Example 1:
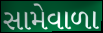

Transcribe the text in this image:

સામેવાળા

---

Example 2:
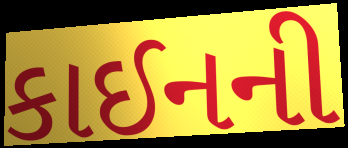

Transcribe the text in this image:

કાઈનની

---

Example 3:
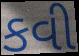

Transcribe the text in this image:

કવી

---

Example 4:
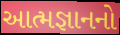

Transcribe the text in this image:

આત્મજ્ઞાનનો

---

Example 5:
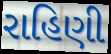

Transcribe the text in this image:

રાહિણી